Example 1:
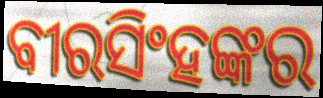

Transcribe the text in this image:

ବୀରସିଂହଙ୍କର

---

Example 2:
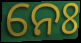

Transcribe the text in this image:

ନେଃ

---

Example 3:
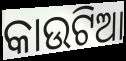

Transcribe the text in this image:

କାଉଟିଆ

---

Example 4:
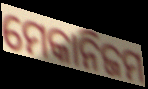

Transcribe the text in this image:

ମେକାନିଜମ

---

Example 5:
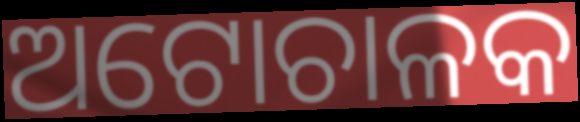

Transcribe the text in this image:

ଅଟୋଚାଳକ